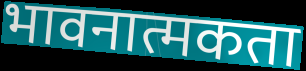
भावनात्मकता